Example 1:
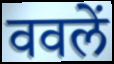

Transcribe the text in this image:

ववलें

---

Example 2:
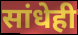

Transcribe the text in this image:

सांधेही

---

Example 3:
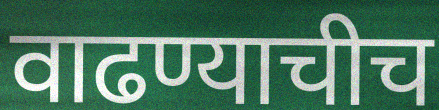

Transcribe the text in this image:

वाढण्याचीच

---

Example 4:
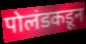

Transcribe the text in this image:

पोलंडकडून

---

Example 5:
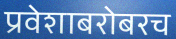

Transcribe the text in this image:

प्रवेशाबरोबरच